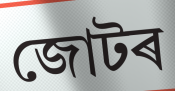
জোটৰ